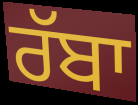
ਰੱਬਾ